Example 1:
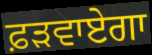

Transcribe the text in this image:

ਫ਼ੜਵਾਏਗਾ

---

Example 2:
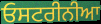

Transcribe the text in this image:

ਓਸਟਰੀਨੀਆ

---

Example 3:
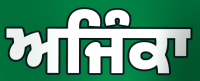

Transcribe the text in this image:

ਅਜਿੰਕਾ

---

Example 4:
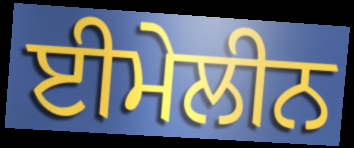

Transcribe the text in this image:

ਈਮੇਲੀਨ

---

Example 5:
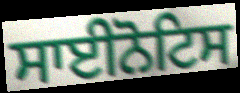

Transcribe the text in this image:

ਸਾਈਨੋਟਿਸ